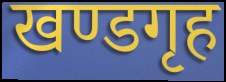
खण्डगृह